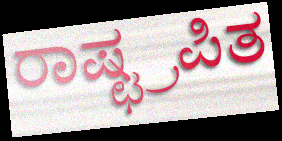
ರಾಷ್ಟ್ರಪಿತ